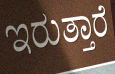
ಇರುತ್ತಾರೆ